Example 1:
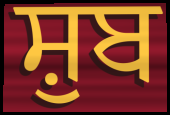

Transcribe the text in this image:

ਸ਼ੁਬ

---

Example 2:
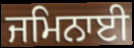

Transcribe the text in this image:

ਜਮਿਨਾਈ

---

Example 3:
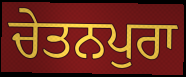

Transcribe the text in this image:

ਚੇਤਨਪੁਰਾ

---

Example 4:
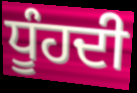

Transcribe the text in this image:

ਧੂੰਹਦੀ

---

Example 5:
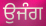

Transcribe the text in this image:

ਉਜੰਗ